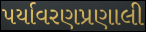
પર્યાવરણપ્રણાલી